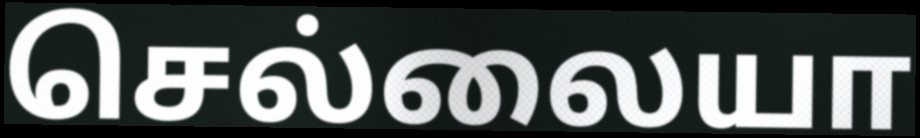
செல்லையா